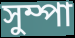
সুম্পা